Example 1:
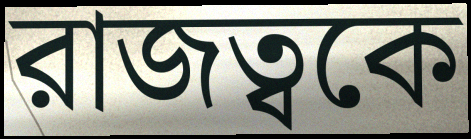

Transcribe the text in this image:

রাজত্বকে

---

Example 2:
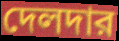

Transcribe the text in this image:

দেলদার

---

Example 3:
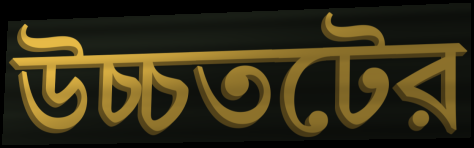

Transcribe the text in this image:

উচ্চতটের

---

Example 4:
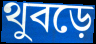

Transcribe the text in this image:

থুবড়ে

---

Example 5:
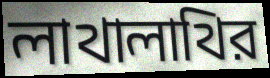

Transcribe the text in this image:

লাথালাথির